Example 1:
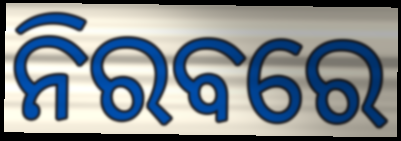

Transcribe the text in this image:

ନିରବରେ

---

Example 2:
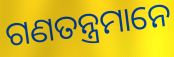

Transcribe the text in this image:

ଗଣତନ୍ତ୍ରମାନେ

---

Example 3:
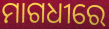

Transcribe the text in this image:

ମାଗଧୀରେ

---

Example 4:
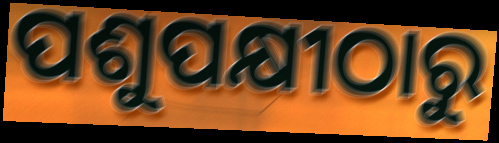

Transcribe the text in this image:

ପଶୁପକ୍ଷୀଠାରୁ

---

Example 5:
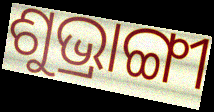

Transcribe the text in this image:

ଶୁଭ୍ରାଙ୍ଗୀ